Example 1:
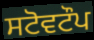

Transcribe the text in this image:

ਸਟੋਵਟੌਪ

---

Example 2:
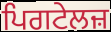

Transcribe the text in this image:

ਪਿਗਟੇਲਜ਼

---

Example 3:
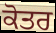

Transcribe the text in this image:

ਕੋਤਰ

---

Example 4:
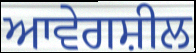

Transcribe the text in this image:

ਆਵੇਗਸ਼ੀਲ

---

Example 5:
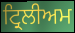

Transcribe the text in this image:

ਟ੍ਰਿਲੀਅਮ